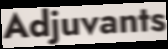
Adjuvants